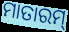
ମାତାରମ୍